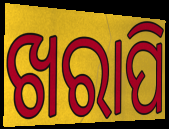
ଖରାପି